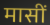
मासीं